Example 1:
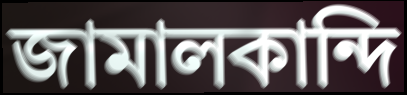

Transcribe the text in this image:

জামালকান্দি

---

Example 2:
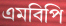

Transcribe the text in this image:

এমবিপি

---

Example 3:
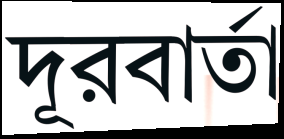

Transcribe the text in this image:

দূরবার্তা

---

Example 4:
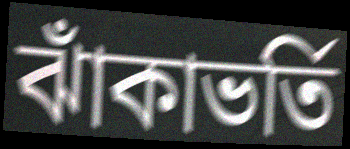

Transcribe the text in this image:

ঝাঁকাভর্তি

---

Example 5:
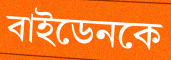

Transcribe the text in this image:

বাইডেনকে